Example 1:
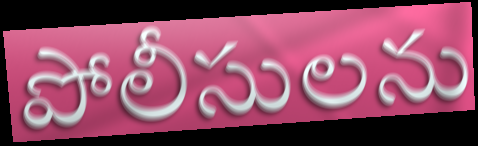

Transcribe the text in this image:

పోలీసులను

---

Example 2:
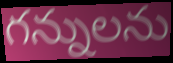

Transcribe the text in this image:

గన్నులను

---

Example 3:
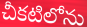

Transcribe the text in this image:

చీకటిలోను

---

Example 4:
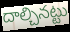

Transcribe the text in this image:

దాల్చినట్టు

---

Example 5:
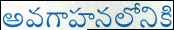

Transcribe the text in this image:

అవగాహనలోనికి